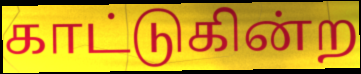
காட்டுகின்ற